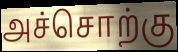
அச்சொற்கு